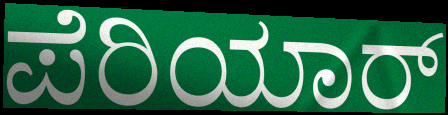
ಪೆರಿಯಾರ್